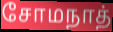
சோமநாத்